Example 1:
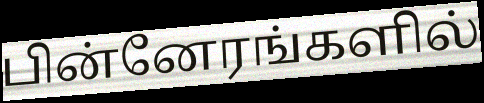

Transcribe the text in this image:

பின்னேரங்களில்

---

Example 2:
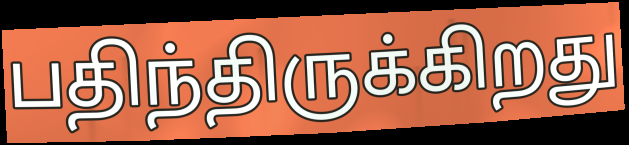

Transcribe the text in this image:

பதிந்திருக்கிறது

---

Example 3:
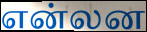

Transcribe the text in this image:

என்லன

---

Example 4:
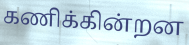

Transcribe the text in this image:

கணிக்கின்றன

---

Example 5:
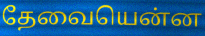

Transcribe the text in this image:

தேவையென்ன